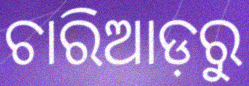
ଚାରିଆଡ଼ରୁ